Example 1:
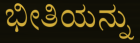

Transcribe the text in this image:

ಭೀತಿಯನ್ನು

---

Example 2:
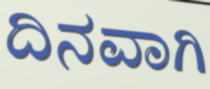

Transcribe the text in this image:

ದಿನವಾಗಿ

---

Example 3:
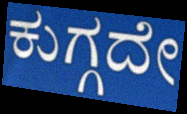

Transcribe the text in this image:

ಕುಗ್ಗದೇ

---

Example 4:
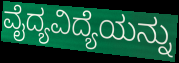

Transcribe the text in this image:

ವೈದ್ಯವಿದ್ಯೆಯನ್ನು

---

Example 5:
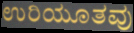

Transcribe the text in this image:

ಉರಿಯೂತವು